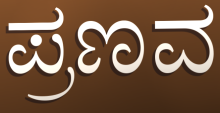
ಪ್ರಣವ